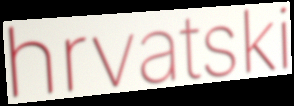
hrvatski